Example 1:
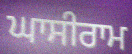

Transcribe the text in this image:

ਘਾਸੀਰਾਮ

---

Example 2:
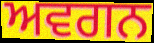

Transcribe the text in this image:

ਅਵਗਨ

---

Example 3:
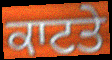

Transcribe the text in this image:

ਕਾਟਤੇ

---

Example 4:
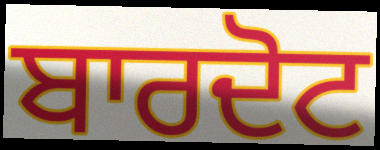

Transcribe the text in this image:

ਬਾਰਦੋਟ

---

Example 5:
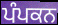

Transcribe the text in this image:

ਪੰਪਕਨ